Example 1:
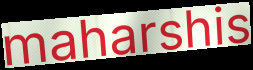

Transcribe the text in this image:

maharshis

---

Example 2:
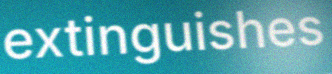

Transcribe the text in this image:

extinguishes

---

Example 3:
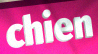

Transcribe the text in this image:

chien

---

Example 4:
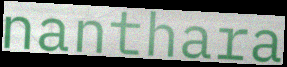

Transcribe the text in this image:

nanthara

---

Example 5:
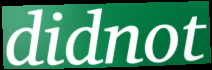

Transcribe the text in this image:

didnot